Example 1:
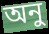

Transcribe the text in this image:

অনু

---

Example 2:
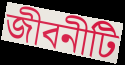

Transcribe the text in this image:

জীবনীটি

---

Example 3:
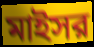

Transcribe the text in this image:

মাইসর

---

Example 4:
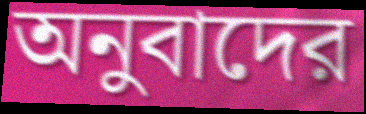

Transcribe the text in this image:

অনুবাদের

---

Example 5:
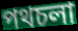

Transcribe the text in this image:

পথচলা